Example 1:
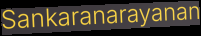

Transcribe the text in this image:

Sankaranarayanan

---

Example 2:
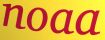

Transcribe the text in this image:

noaa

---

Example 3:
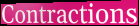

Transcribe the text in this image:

Contractions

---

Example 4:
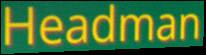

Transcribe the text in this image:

Headman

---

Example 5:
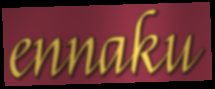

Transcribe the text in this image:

ennaku